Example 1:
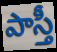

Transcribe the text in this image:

పాస్తీ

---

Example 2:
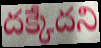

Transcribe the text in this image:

దక్కేదని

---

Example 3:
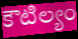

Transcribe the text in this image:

కౌటిల్యం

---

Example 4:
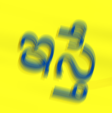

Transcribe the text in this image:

ఇస్తే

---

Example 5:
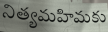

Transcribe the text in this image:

నిత్యమహిమకు